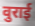
वुराई